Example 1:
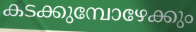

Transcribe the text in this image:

കടക്കുമ്പോഴേക്കും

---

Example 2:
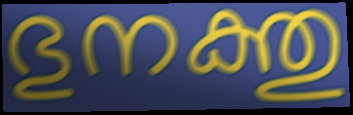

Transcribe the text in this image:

ഭുനക്തു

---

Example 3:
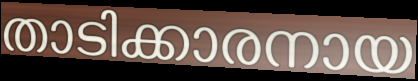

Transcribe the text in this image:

താടിക്കാരനായ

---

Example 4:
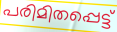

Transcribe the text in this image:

പരിമിതപ്പെട്ട്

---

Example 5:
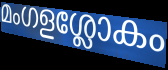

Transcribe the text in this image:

മംഗളശ്ലോകം